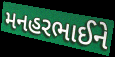
મનહરભાઈને